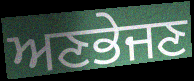
ਅਣਭੇਜਣ